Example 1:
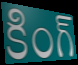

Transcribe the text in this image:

కింగ్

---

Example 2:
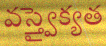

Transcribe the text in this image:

వస్త్వైక్యత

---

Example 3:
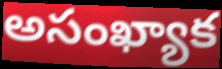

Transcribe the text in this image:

అసంఖ్యాక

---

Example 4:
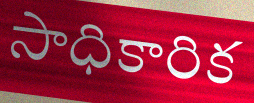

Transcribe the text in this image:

సాధికారిక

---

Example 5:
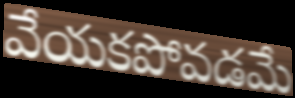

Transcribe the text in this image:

వేయకపోవడమే